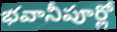
భవానీపూర్లో